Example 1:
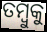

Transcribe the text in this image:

ତମ୍ବୁକୁ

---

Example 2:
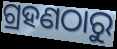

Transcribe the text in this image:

ଗ୍ରହଣଠାରୁ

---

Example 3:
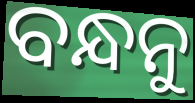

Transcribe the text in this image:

ବନ୍ଧନୁ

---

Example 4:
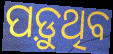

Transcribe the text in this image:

ପଡ଼ୁଥିବ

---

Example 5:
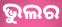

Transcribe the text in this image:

ଭୁଲର